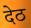
देठ